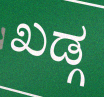
ಖಡ್ಗ